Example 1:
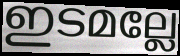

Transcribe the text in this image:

ഇടമല്ലേ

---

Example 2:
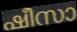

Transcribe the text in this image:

ഷീസാ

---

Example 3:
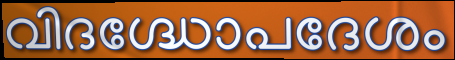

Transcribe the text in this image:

വിദഗ്ദ്ധോപദേശം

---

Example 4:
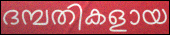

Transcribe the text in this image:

ദമ്പതികളായ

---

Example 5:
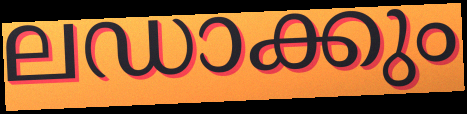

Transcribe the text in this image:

ലഡാക്കും